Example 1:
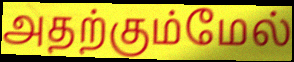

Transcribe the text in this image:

அதற்கும்மேல்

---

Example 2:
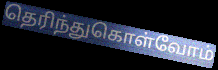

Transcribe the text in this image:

தெரிந்துகொள்வோம்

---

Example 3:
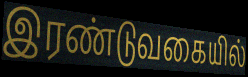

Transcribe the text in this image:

இரண்டுவகையில்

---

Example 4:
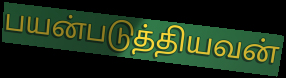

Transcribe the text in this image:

பயன்படுத்தியவன்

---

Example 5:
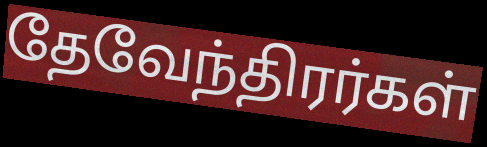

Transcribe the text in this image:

தேவேந்திரர்கள்